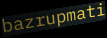
bazrupmati